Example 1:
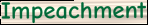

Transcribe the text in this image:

Impeachment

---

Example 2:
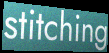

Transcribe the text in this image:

stitching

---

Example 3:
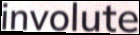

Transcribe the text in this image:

involute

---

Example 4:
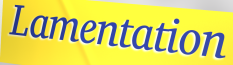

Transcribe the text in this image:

Lamentation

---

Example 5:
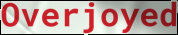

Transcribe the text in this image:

Overjoyed